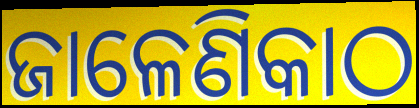
ଜାଳେଣିକାଠ